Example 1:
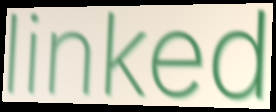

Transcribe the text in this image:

linked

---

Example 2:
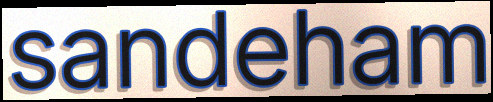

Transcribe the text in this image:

sandeham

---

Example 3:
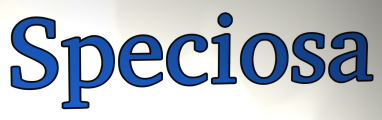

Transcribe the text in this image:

Speciosa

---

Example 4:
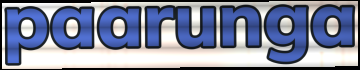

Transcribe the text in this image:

paarunga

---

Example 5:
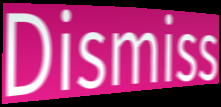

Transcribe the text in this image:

Dismiss